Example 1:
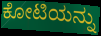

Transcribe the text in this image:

ಕೋಟಿಯನ್ನು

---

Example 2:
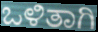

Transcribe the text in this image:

ಒಳಿತಾಗಿ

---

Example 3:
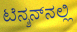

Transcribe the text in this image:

ಟೆನ್ಶನ್‌ನಲ್ಲಿ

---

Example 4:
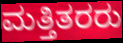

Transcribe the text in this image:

ಮತ್ತಿತರರು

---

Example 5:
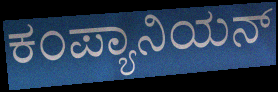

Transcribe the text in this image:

ಕಂಪ್ಯಾನಿಯನ್